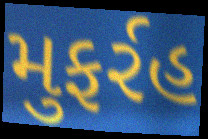
મુફર્રહ